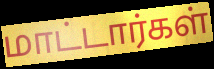
மாட்டார்கள்